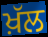
ਖ਼ੱਲ